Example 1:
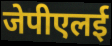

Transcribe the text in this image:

जेपीएलई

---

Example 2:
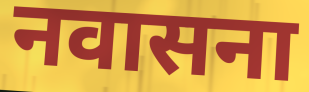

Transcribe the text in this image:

नवासना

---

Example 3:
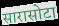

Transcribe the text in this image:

सारासोटा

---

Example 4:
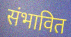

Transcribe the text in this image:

संभावित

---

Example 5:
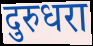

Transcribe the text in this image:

दुरुधरा